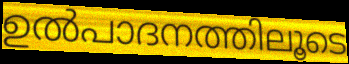
ഉൽപാദനത്തിലൂടെ